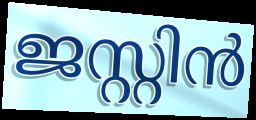
ജസ്റ്റിൻ